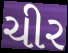
ચીર